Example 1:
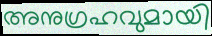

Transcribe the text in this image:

അനുഗ്രഹവുമായി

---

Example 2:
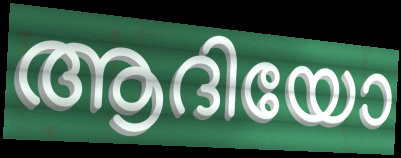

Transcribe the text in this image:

ആദിയോ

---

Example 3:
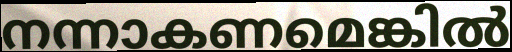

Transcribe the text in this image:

നന്നാകണമെങ്കിൽ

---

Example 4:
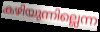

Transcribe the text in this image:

കഴിയുന്നില്ലെന്ന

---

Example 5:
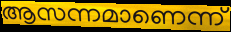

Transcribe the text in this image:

ആസന്നമാണെന്ന്